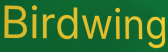
Birdwing